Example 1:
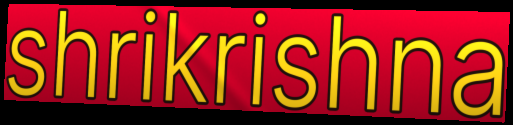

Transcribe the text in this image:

shrikrishna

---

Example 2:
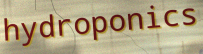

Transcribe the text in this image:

hydroponics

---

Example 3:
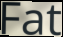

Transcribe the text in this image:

Fat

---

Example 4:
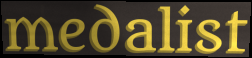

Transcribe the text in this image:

medalist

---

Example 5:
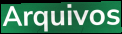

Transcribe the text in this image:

Arquivos